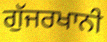
ਗੁੱਜਰਖਾਨੀ